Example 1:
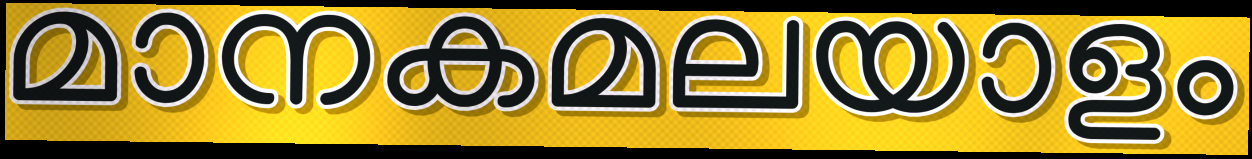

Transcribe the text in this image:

മാനകമലയാളം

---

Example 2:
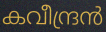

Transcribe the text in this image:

കവീന്ദ്രൻ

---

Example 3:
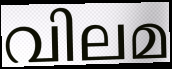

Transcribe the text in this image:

വിലമ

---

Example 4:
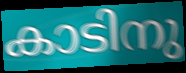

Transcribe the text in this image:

കാടിനു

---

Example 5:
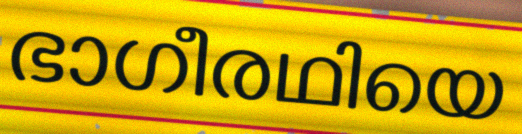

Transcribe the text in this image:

ഭാഗീരഥിയെ